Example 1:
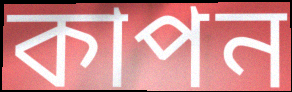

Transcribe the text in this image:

কাপন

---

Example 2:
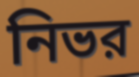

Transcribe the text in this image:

নিভর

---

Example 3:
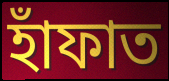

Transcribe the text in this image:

হাঁফাত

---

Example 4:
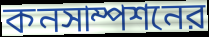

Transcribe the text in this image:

কনসাম্পশনের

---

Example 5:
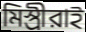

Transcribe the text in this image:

মিস্ত্রীরাই